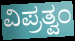
ವಿಪ್ರತ್ವಂ